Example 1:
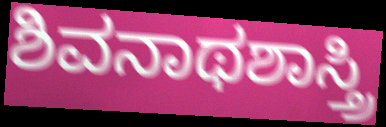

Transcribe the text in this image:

ಶಿವನಾಥಶಾಸ್ತ್ರಿ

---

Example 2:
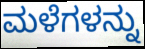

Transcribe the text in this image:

ಮಳೆಗಳನ್ನು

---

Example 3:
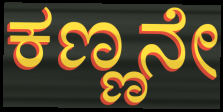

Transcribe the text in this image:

ಕಣ್ಣನೇ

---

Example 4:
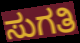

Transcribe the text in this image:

ಸುಗತಿ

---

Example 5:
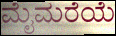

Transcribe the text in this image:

ಮೈಮರೆಯೆ